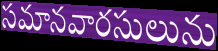
సమానవారసులును